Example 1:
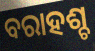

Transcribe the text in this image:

ବରାହଶ୍ଚ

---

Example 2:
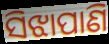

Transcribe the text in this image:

ସିଝାପାଣି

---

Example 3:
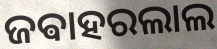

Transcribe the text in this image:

ଜଵାହରଲାଲ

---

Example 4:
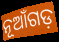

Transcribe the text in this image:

ନୂଆଁଗଡ଼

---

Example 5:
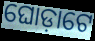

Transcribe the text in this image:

ଘୋଡ଼ାଟେ